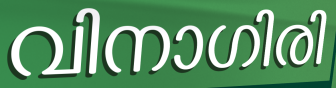
വിനാഗിരി